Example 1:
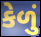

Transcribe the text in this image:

કેળું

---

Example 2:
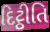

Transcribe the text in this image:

દિટ્ઠીતિ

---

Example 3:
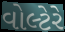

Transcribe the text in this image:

વોલ્ટેરે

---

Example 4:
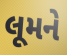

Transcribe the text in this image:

લૂમને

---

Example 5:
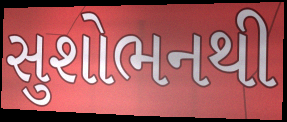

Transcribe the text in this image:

સુશોભનથી